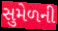
સુમેળની